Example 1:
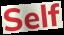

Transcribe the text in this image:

Self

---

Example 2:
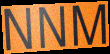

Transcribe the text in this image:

NNM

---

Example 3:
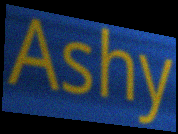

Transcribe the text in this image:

Ashy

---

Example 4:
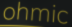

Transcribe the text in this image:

ohmic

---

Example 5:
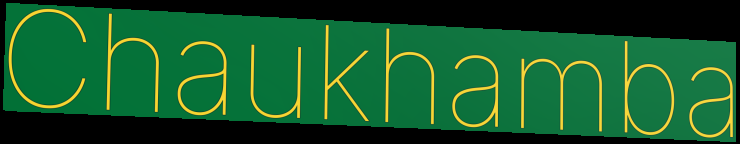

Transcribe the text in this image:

Chaukhamba